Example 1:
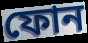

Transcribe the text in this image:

ফোন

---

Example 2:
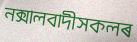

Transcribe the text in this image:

নক্সালবাদীসকলৰ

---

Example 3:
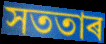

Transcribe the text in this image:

সততাৰ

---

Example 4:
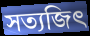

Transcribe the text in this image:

সত্যজিৎ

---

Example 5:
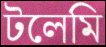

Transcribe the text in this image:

টলেমি